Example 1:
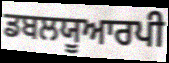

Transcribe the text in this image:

ਡਬਲਯੂਆਰਪੀ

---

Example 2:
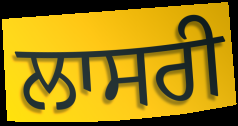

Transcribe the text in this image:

ਲਾਸਰੀ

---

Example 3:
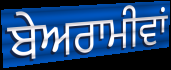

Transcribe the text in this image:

ਬੇਅਰਾਮੀਵਾਂ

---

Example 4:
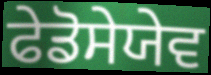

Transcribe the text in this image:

ਫੇਡੋਸੇਯੇਵ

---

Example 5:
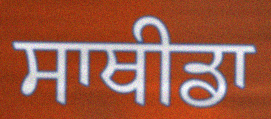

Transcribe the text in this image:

ਸਾਥੀਡਾ